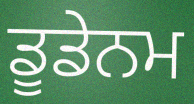
ਡੂਡੇਨਮ